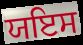
ਯਇਸ